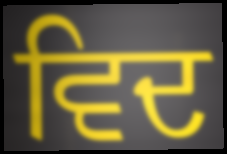
ਵਿਦ